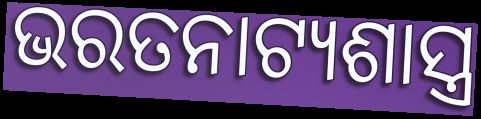
ଭରତନାଟ୍ୟଶାସ୍ତ୍ର